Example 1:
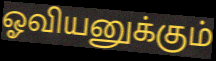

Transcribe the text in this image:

ஓவியனுக்கும்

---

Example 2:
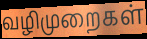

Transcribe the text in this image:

வழிமுறைகள்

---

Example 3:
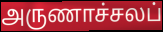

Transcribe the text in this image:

அருணாச்சலப்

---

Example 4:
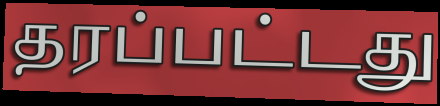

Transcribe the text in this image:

தரப்பட்டது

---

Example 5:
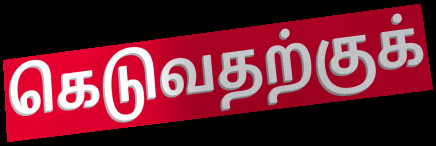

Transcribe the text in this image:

கெடுவதற்குக்